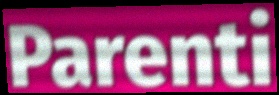
Parenti